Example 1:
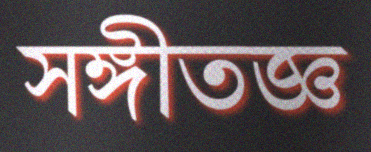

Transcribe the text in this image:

সঙ্গীতজ্ঞ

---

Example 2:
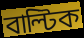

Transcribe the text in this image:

বাল্টিক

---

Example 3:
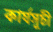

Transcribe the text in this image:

কাৰ্যসূচী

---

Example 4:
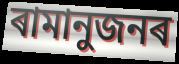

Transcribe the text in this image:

ৰামানুজনৰ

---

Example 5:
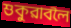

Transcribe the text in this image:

শুকুৱাবলৈ